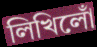
লিখিলোঁ